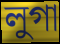
লুগা